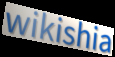
wikishia